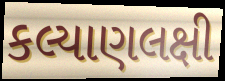
કલ્યાણલક્ષી